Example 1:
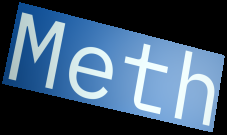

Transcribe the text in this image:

Meth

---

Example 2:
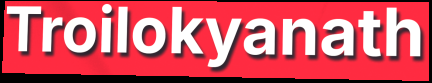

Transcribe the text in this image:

Troilokyanath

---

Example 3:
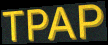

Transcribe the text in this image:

TPAP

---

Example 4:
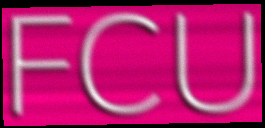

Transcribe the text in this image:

FCU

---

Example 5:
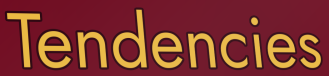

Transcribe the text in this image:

Tendencies